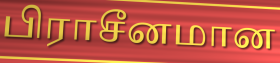
பிராசீனமான